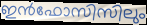
ഇൻഫോസിസിലും